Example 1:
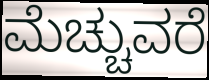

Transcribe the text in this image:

ಮೆಚ್ಚುವರೆ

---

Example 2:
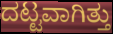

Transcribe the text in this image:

ದಟ್ಟವಾಗಿತ್ತು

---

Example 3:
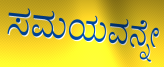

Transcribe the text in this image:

ಸಮಯವನ್ನೇ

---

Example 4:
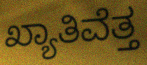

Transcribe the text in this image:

ಖ್ಯಾತಿವೆತ್ತ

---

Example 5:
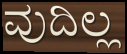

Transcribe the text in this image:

ವುದಿಲ್ಲ